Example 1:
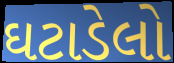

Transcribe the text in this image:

ઘટાડેલો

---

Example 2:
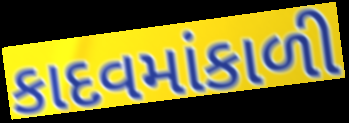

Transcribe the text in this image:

કાદવમાંકાળી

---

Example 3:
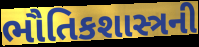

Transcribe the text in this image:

ભૌતિકશાસ્ત્રની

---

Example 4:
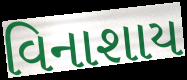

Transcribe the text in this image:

વિનાશાય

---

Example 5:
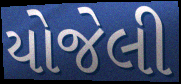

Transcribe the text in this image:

યોજેલી